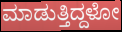
ಮಾಡುತ್ತಿದ್ದಳೋ